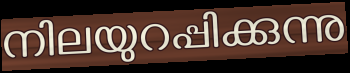
നിലയുറപ്പിക്കുന്നു